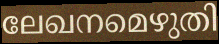
ലേഖനമെഴുതി